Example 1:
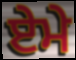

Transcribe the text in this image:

ਏਮੇ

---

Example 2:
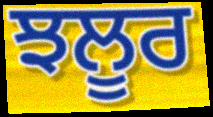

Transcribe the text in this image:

ਝਲੂਰ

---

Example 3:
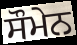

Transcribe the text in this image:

ਸੌਮੇਨ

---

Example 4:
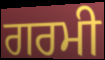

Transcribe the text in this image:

ਗਰਮੀ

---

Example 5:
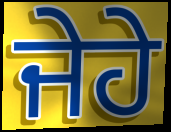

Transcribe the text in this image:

ਜੇਹੇ